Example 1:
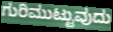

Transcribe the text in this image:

ಗುರಿಮುಟ್ಟುವುದು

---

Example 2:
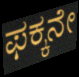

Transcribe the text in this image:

ಫಕ್ಕನೇ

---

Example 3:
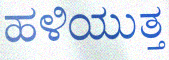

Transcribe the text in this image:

ಹಳಿಯುತ್ತ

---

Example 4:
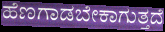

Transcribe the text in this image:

ಹೆಣಗಾಡಬೇಕಾಗುತ್ತದೆ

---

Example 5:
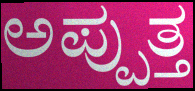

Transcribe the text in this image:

ಅಪ್ಪುತ್ತ